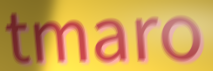
tmaro